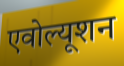
एवोल्यूशन